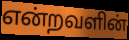
என்றவளின்